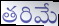
తరిమే